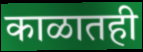
काळातही